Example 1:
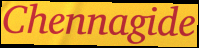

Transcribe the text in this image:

Chennagide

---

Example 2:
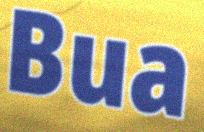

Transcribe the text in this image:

Bua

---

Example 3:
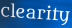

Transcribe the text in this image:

clearity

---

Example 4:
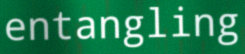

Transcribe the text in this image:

entangling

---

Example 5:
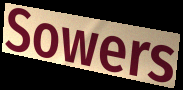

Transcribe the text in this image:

Sowers